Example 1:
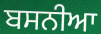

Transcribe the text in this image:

ਬਸਨੀਆ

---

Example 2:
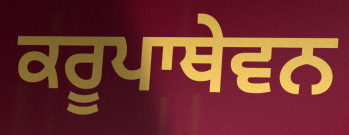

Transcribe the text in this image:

ਕਰੂਪਾਥੇਵਨ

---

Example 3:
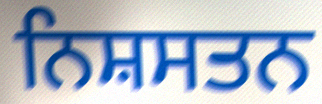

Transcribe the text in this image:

ਨਿਸ਼ਸਤਨ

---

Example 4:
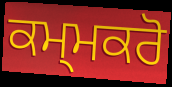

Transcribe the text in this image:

ਕਮ੍ਮਕਰੋ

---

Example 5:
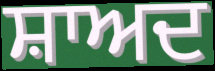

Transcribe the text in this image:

ਸ਼ਾਅਦ